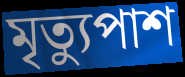
মৃত্যুপাশ